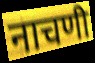
नाचणी